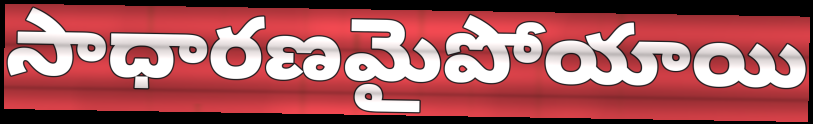
సాధారణమైపోయాయి